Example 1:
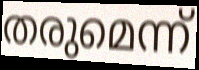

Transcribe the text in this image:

തരുമെന്ന്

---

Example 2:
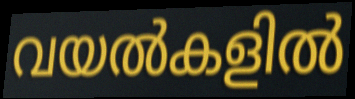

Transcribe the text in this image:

വയൽകളിൽ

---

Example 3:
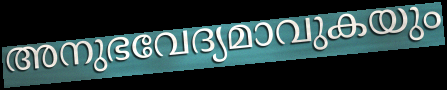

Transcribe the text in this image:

അനുഭവേദ്യമാവുകയും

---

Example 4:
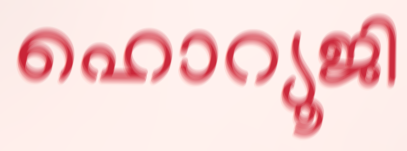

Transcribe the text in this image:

ഹൊറ്യൂജി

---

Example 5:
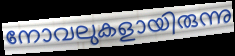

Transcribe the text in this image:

നോവലുകളായിരുന്നു